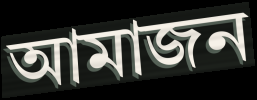
আমাজন